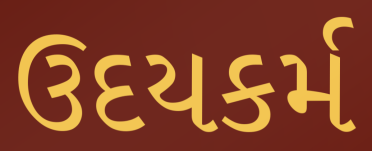
ઉદયકર્મ